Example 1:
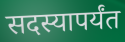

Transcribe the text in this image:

सदस्यापर्यंत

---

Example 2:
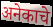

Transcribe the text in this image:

अनेकाचे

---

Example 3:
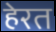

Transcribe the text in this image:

हेरत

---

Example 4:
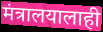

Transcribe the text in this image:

मंत्रालयालाही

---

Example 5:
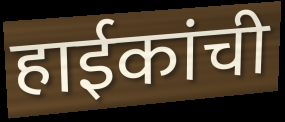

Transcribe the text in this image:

हाईकांची